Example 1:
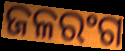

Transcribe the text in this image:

ଜଳରଂଗ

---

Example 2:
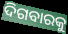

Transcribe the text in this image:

ଦିଗବାରକୁ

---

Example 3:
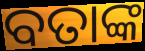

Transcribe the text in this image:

ବତାଙ୍କ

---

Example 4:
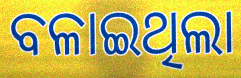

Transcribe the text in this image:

ବଳାଇଥିଲା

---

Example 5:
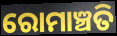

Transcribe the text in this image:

ରୋମାଞ୍ଚତି